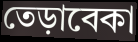
তেড়াবেকা